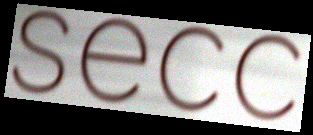
secc